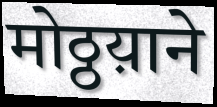
मोठ्ठय़ाने